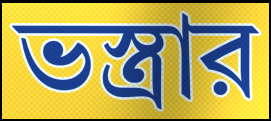
ভস্ত্রার